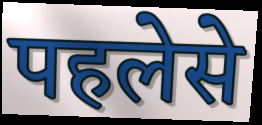
पहलेसे